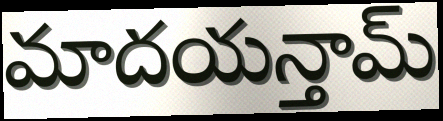
మాదయన్తామ్